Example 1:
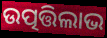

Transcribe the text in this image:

ଉତ୍ପତ୍ତିଲାଭ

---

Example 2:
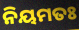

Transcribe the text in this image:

ନିୟମତଃ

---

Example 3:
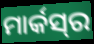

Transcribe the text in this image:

ମାର୍କସ୍‍ର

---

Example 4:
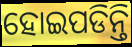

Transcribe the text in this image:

ହୋଇପଡିନ୍ତି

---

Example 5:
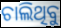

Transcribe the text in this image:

ଚାଲିଥିବୁ